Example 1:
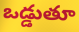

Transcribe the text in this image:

ఒడ్డుతూ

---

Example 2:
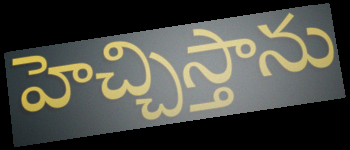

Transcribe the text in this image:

హెచ్చిస్తాను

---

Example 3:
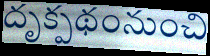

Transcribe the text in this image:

దృక్పథంనుంచి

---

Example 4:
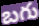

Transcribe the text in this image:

బగు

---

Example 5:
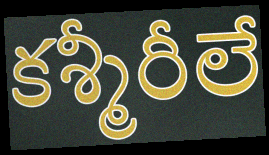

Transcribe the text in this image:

కశ్మీరీలే